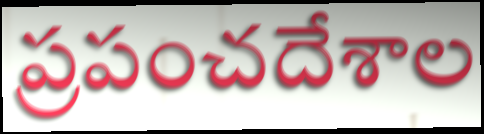
ప్రపంచదేశాల